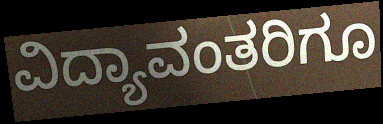
ವಿದ್ಯಾವಂತರಿಗೂ